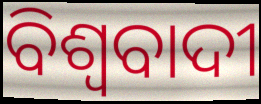
ବିଶ୍ବବାଦୀ